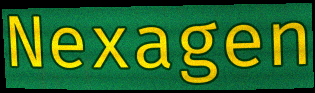
Nexagen